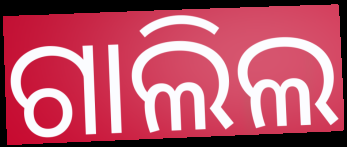
ଗାଲିଲ